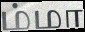
ம்மா